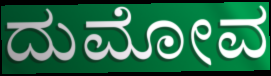
ದುಮೋವ